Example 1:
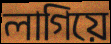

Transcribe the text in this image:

লাগিয়ে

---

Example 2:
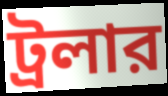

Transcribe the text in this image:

ট্রলার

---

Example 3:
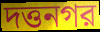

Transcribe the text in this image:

দত্তনগর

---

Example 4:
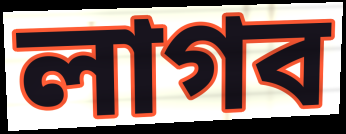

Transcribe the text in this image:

লাগব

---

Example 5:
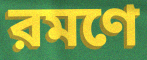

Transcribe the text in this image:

রমণে